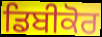
ਡਿਬੀਕੋਰ